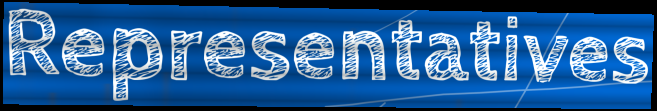
Representatives